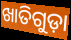
ଖାତିଗୁଡ଼ା